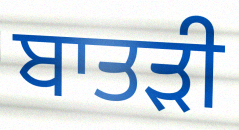
ਬਾਤੜੀ